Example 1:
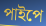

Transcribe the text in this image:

পাইপে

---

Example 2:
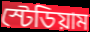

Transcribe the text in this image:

স্টেডিয়াম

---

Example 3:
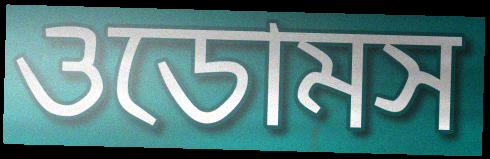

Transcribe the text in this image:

ওডোমস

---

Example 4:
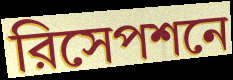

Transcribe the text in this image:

রিসেপশনে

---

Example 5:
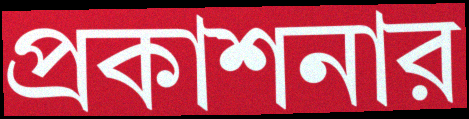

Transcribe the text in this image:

প্রকাশনার